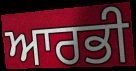
ਆਰਭੀ